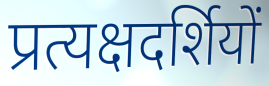
प्रत्यक्षदर्शियों